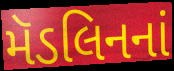
મૅડલિનનાં